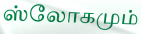
ஸ்லோகமும்